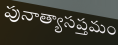
పునాత్యాసప్తమం